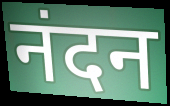
नंदन